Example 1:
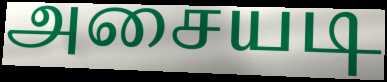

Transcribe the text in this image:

அசையடி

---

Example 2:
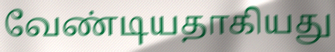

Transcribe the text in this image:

வேண்டியதாகியது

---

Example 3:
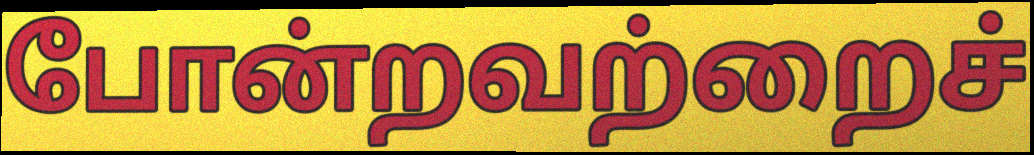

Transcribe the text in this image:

போன்றவற்றைச்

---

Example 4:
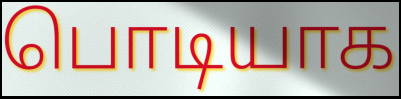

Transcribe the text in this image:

பொடியாக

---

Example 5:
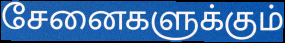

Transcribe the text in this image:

சேனைகளுக்கும்